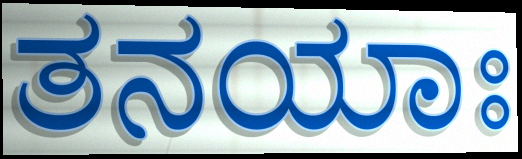
ತನಯಾಃ